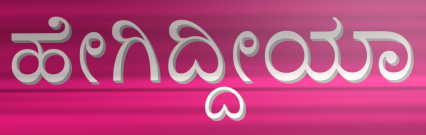
ಹೇಗಿದ್ದೀಯಾ